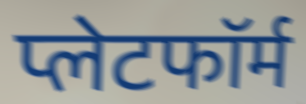
प्‍लेटफॉर्म